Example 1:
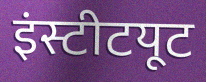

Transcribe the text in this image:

इंस्‍टीटयूट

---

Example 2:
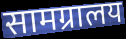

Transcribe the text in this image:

सामग्रालय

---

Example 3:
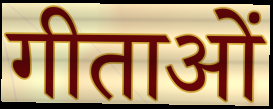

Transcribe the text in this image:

गीताओं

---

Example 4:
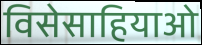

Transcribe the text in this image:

विसेसाहियाओ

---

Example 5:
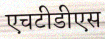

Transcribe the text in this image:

एचटीडीएस